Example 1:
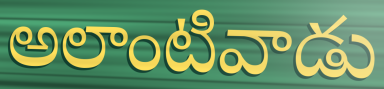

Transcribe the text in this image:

అలాంటివాడు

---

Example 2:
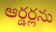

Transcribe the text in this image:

ఆర్డర్లను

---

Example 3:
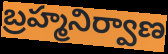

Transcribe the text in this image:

బ్రహ్మనిర్వాణ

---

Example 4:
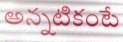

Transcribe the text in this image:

అన్నటికంటే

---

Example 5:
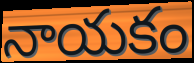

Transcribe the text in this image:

నాయకం